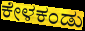
ಕೇಳಕಂಡು